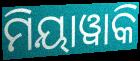
ମିୟାୱାକି